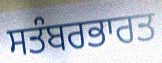
ਸਤੰਬਰਭਾਰਤ